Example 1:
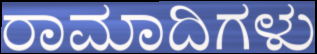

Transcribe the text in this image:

ರಾಮಾದಿಗಳು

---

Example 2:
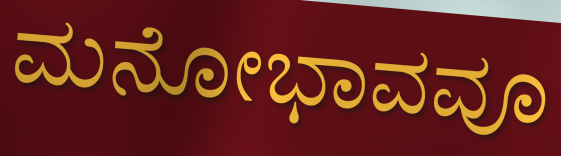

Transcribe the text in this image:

ಮನೋಭಾವವೂ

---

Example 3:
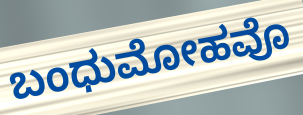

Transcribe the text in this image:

ಬಂಧುಮೋಹವೊ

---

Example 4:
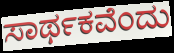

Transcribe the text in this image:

ಸಾರ್ಥಕವೆಂದು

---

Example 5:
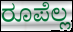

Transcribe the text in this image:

ರೂಪೆಲ್ಲ